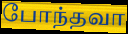
போந்தவா